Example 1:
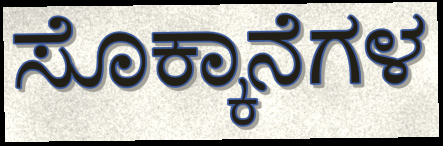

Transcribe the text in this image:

ಸೊಕ್ಕಾನೆಗಳ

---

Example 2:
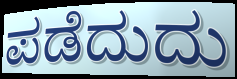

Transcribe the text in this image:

ಪಡೆದುದು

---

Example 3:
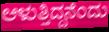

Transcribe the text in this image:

ಆಳುತ್ತಿದ್ದನೆಂದು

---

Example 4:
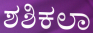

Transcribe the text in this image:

ಶಶಿಕಲಾ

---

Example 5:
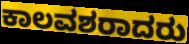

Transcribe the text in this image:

ಕಾಲವಶರಾದರು